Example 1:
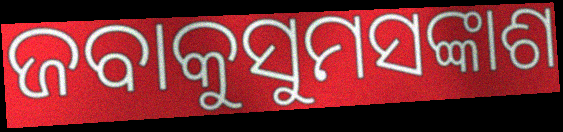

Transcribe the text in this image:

ଜବାକୁସୁମସଙ୍କାଶ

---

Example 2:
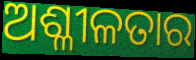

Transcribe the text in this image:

ଅଶ୍ଳୀଳତାର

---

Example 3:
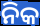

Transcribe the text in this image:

ନିକ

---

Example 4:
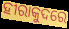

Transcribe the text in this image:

ହୀରାକୁଦରେ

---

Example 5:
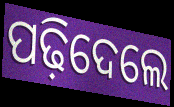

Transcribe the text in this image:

ପଢ଼ିଦେଲେ